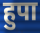
हुपा